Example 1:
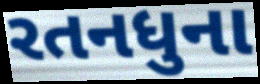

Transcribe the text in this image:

રતનધુના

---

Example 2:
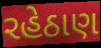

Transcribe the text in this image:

રહેઠાણ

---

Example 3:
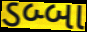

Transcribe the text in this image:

ડબ્બા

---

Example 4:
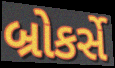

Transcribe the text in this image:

બ્રોકર્સે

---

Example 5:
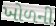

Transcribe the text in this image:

ખોળની